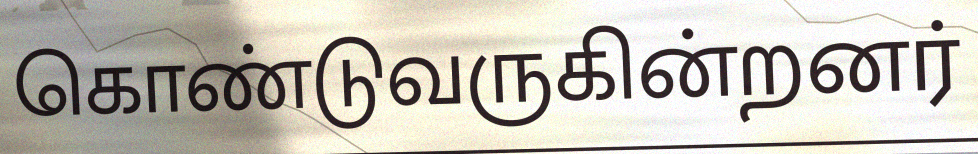
கொண்டுவருகின்றனர்